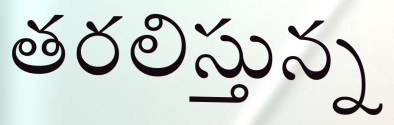
తరలిస్తున్న